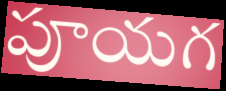
పూయగ